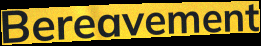
Bereavement